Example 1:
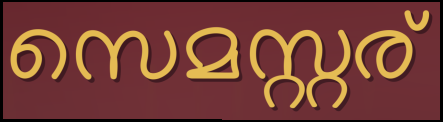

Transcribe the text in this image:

സെമസ്റ്റര്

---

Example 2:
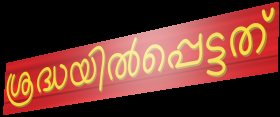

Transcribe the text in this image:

ശ്രദ്ധയിൽപ്പെട്ടത്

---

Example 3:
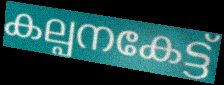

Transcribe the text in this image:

കല്പനകേട്ട്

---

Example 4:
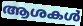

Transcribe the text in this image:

ആശകൾ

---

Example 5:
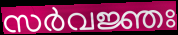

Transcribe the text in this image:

സർവജ്ഞഃ